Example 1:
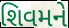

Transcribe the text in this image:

શિવમને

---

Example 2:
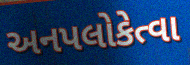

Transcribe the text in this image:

અનપલોકેત્વા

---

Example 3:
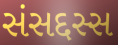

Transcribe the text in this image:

સંસદ્દસ્સ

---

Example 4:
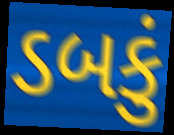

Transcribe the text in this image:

ડબકું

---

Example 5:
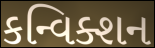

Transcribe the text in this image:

કન્વિક્શન